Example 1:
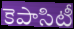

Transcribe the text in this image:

కెపాసిటీ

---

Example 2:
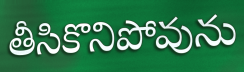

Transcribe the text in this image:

తీసికొనిపోవును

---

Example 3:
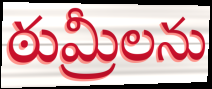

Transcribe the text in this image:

ఠుమ్రీలను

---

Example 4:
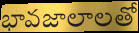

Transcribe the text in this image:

భావజాలాలతో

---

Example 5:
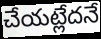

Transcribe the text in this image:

చేయట్లేదనే